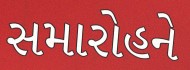
સમારોહને